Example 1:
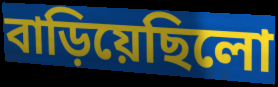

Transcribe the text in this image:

বাড়িয়েছিলো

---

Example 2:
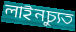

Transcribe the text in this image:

লাইনচ্যুত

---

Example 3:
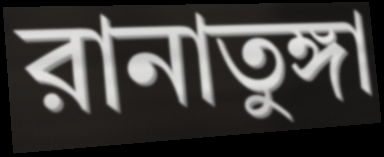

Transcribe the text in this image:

রানাতুঙ্গা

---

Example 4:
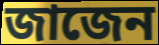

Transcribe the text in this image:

জাজেন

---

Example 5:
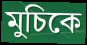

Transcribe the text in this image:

মুচিকে